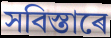
সবিস্তাৰে